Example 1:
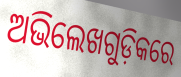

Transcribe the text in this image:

ଅଭିଲେଖଗୁଡ଼ିକରେ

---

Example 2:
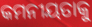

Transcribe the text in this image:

କମନୀୟତାକୁ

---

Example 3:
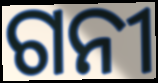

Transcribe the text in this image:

ଗନୀ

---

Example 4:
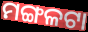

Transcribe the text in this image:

ମଙ୍ଗଳଟା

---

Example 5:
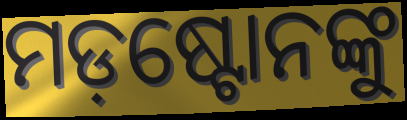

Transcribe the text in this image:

ମଡ଼ଷ୍ଟୋନଙ୍କୁ